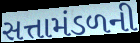
સત્તામંડળની